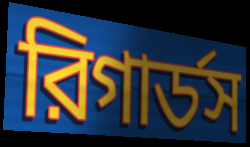
রিগার্ডস